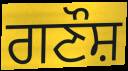
ਗਣੌਸ਼